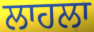
ਲਾਹਲਾ